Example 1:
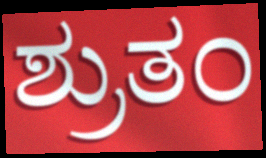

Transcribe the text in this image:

ಶ್ರುತಂ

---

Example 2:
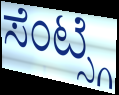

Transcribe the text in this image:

ಸೆಂಟ್ಸ್ಗೆ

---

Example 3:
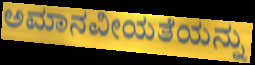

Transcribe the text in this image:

ಅಮಾನವೀಯತೆಯನ್ನು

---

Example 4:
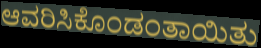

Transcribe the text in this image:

ಆವರಿಸಿಕೊಂಡಂತಾಯಿತು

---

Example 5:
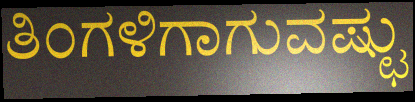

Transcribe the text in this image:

ತಿಂಗಳಿಗಾಗುವಷ್ಟು